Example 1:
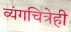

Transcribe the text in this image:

व्यंगचित्रेही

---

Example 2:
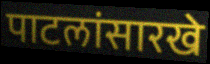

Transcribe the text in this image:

पाटलांसारखे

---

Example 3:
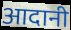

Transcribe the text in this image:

आदानी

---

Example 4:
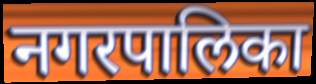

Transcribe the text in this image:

नगरपालिका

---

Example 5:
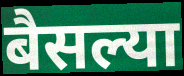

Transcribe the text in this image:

बैसल्या